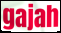
gajah